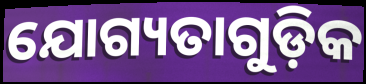
ଯୋଗ୍ୟତାଗୁଡ଼ିକ